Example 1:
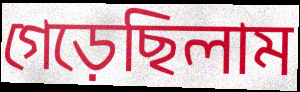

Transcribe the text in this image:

গেড়েছিলাম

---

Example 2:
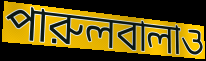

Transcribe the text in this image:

পারুলবালাও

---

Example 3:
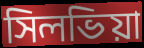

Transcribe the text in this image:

সিলভিয়া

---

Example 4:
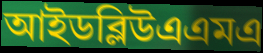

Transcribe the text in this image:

আইডব্লিউএএমএ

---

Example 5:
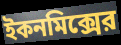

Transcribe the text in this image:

ইকনমিক্সের